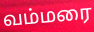
வம்மரை